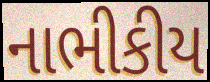
નાભીકીય